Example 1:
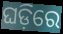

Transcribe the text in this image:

ଘଡ଼ିରେ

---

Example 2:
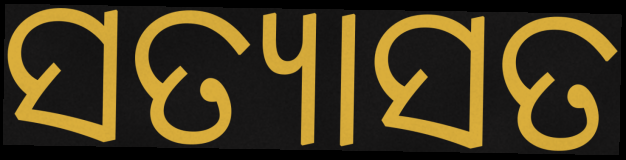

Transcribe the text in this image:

ସତ୍ୟାସତ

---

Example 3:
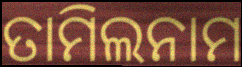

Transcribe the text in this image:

ତାମିଲନାମ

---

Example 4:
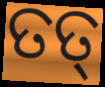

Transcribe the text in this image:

ତତ୍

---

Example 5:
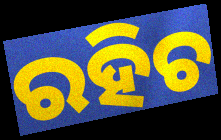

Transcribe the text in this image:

ରହିଚ